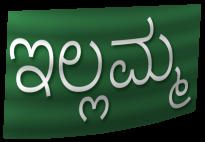
ಇಲ್ಲಮ್ಮ